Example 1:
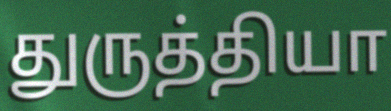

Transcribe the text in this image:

துருத்தியா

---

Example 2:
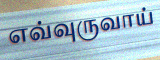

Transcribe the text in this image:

எவ்வுருவாய்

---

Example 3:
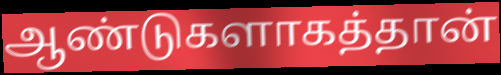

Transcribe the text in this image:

ஆண்டுகளாகத்தான்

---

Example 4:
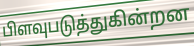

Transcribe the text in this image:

பிளவுபடுத்துகின்றன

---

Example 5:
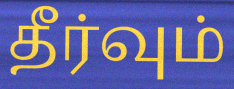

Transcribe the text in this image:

தீர்வும்